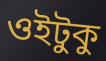
ওইটুকু